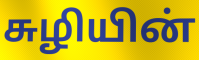
சுழியின்